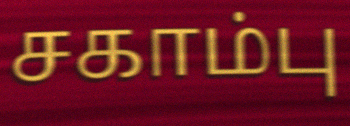
சகாம்பு